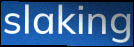
slaking